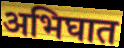
अभिघात